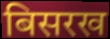
बिसरख